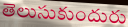
తెలుసుకుందురు